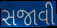
સજાવી